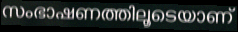
സംഭാഷണത്തിലൂടെയാണ്